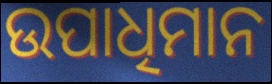
ଉପାଧିମାନ